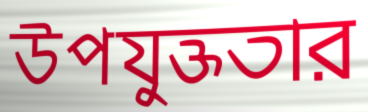
উপযুক্ততার